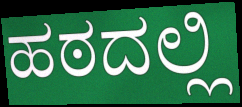
ಹಠದಲ್ಲಿ